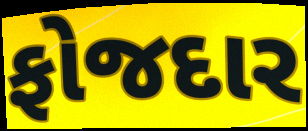
ફોજદાર